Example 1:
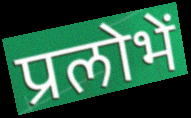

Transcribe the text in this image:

प्रलोभें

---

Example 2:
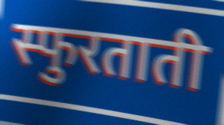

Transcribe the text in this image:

स्फुरताती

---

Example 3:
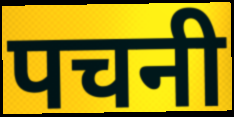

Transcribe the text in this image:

पचनी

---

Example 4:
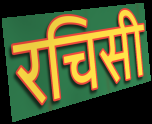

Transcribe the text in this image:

रचिसी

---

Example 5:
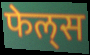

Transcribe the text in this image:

फेल्स